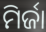
ମିର୍ଜା